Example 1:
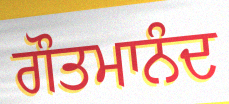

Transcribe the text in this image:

ਗੌਤਮਾਨੰਦ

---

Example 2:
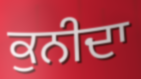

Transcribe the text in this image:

ਕੁਨੀਦਾ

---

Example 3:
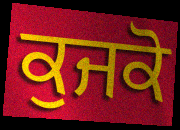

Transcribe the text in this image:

ਕੁਜਕੋ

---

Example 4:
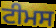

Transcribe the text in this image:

ਟੀਮਸ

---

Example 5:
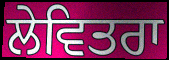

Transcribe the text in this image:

ਲੇਵਿਤਰਾ